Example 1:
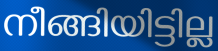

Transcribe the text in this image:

നീങ്ങിയിട്ടില്ല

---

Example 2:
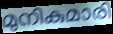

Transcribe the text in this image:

മുനികുമാരി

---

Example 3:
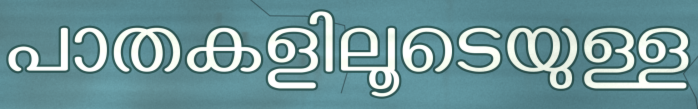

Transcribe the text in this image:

പാതകളിലൂടെയുള്ള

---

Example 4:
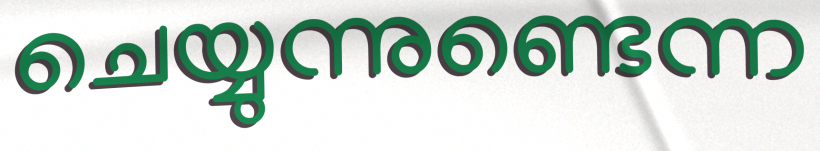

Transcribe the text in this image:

ചെയ്യുന്നുണ്ടെന്ന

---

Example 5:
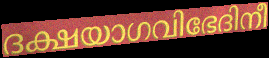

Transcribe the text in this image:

ദക്ഷയാഗവിഭേദിനീ